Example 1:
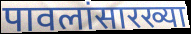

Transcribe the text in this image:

पावलांसारख्या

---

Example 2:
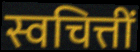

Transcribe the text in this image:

स्वचित्तीं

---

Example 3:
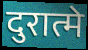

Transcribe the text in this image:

दुरात्मे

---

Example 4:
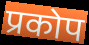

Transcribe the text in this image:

प्रकोप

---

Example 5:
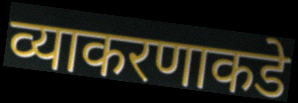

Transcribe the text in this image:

व्याकरणाकडे